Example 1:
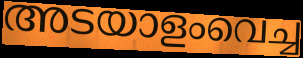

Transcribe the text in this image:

അടയാളംവെച്ച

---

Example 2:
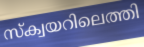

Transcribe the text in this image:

സ്ക്വയറിലെത്തി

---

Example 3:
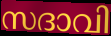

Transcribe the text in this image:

സദാവി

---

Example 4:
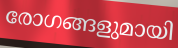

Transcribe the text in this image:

രോഗങ്ങളുമായി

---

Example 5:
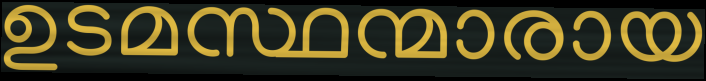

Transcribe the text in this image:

ഉടമസ്ഥന്മാരായ